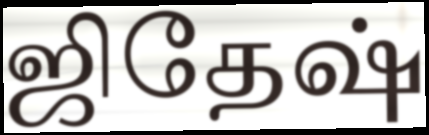
ஜிதேஷ்